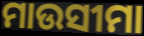
ମାଉସୀମା